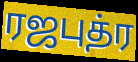
ரஜபுத்ர